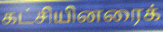
கட்சியினரைக்